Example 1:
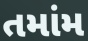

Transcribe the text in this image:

તમાંમ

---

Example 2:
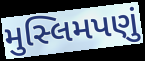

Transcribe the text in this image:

મુસ્લિમપણું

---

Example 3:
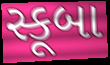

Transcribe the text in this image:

સ્કૂબા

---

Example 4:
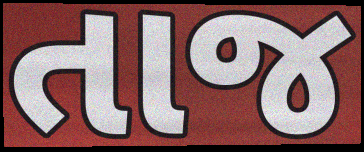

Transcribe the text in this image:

તાજ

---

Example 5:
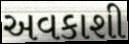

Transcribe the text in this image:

અવકાશી